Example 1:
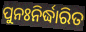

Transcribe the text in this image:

ପୁନଃନିର୍ଦ୍ଧାରିତ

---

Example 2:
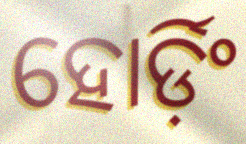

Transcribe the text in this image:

ହୋର୍ଡ଼ିଂ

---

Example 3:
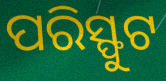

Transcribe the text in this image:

ପରିସ୍ଫୁଟ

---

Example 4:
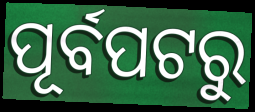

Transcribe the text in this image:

ପୂର୍ବପଟରୁ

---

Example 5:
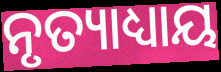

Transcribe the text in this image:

ନୃତ୍ୟାଧ୍ୟାୟ